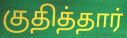
குதித்தார்